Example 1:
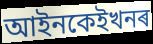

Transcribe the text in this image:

আইনকেইখনৰ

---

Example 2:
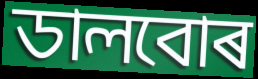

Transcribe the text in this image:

ডালবোৰ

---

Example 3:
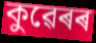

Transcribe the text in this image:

কুৱেৰৰ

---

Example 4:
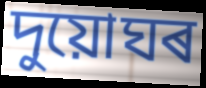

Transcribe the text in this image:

দুয়োঘৰ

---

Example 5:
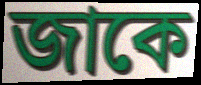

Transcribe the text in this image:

জাকে